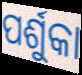
ପର୍ଶୁକା